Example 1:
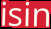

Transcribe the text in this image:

isin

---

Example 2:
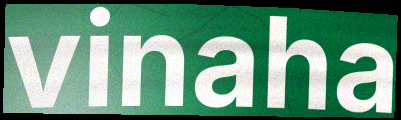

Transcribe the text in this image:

vinaha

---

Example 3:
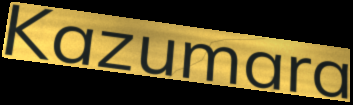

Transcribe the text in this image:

Kazumara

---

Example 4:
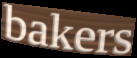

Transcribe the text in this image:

bakers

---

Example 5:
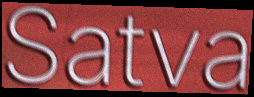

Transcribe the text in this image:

Satva